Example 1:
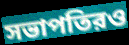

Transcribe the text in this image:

সভাপতিরও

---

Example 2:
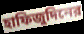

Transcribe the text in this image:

হাফিজুদিনের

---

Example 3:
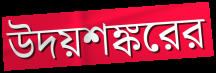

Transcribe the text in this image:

উদয়শঙ্করের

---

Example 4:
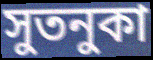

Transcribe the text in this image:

সুতনুকা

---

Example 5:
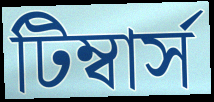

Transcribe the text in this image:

টিম্বার্স